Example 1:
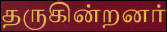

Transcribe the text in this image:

தருகின்றனர்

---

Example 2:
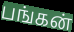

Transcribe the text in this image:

பங்கன்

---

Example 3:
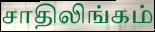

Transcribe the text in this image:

சாதிலிங்கம்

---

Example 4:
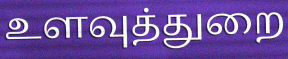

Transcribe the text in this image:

உளவுத்துறை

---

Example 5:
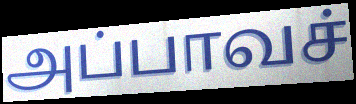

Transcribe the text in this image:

அப்பாவச்